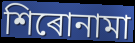
শিৰোনামা